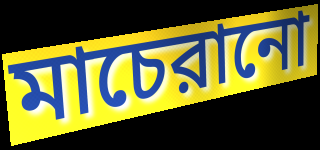
মাচেরানো